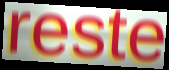
reste